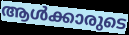
ആൾക്കാരുടെ